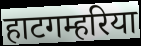
हाटगम्हरिया